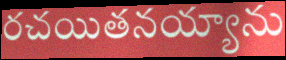
రచయితనయ్యాను